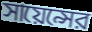
সায়েন্সের